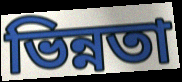
ভিন্নতা